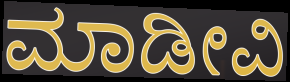
ಮಾಡೀವಿ